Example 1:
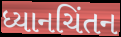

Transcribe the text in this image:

ધ્યાનચિંતન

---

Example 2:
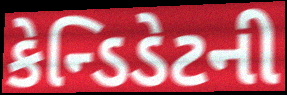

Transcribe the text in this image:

કેન્ડિડેટની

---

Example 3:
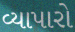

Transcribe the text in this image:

વ્યાપારો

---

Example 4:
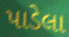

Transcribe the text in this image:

પાડેલા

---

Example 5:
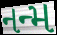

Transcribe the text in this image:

નન્મ